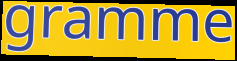
gramme